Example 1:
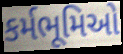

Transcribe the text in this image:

કર્મભૂમિઓ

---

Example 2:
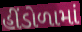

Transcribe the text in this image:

હીંડોળામાં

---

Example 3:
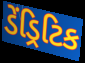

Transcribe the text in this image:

ડેંડ્રિટિક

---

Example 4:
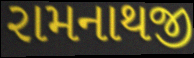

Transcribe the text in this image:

રામનાથજી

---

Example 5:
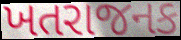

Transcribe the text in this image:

ખતરાજનક